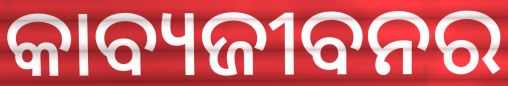
କାବ୍ୟଜୀବନର